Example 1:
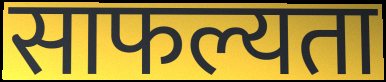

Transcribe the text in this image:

साफल्यता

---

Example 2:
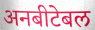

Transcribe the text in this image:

अनबीटेबल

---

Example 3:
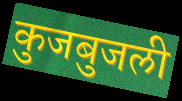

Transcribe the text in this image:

कुजबुजली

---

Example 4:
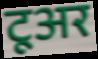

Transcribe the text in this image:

टूअर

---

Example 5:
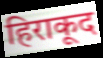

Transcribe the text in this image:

हिराकूद